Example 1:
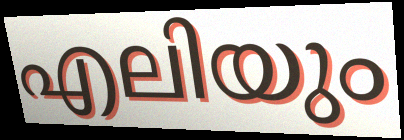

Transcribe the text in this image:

എലിയും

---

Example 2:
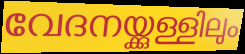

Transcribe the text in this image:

വേദനയ്ക്കുള്ളിലും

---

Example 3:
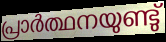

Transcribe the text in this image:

പ്രാർത്ഥനയുണ്ടു്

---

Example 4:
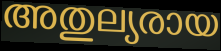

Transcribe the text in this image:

അതുല്യരായ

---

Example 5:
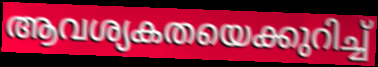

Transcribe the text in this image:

ആവശ്യകതയെക്കുറിച്ച്